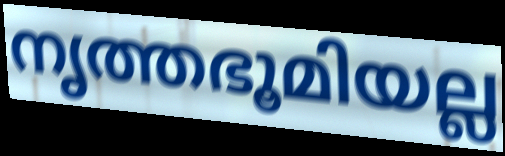
നൃത്തഭൂമിയല്ല